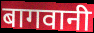
बागवानी